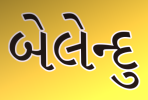
બેલેન્દુ